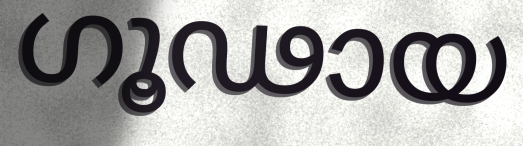
ഗൂഢായ